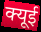
क्यूई